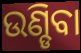
ଉଣ୍ଡିବା